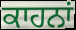
ਕਾਹਨਾਂ